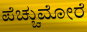
ಪೆಚ್ಚುಮೋರೆ